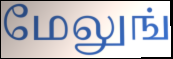
மேலுங்